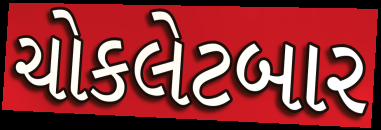
ચોકલેટબાર